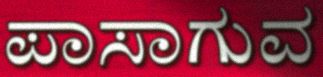
ಪಾಸಾಗುವ